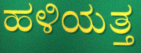
ಹಳಿಯತ್ತ